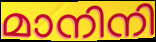
മാനിനി